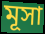
মূসা